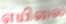
எயிலை